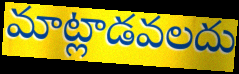
మాట్లాడవలదు